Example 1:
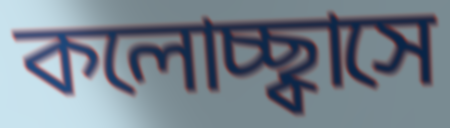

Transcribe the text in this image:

কলোচ্ছ্বাসে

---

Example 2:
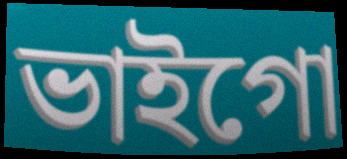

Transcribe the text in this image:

ভাইগো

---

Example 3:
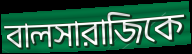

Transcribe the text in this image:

বালসারাজিকে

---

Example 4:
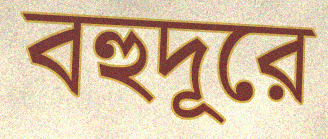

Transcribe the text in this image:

বহুদূরে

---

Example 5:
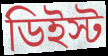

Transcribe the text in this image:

ডিইস্ট